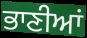
ਭਾਣੀਆਂ